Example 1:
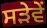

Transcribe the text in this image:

ਸੜੇਵੇਂ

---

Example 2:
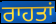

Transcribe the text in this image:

ਰਾਹਤਾਂ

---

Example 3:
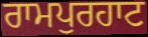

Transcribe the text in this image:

ਰਾਮਪੁਰਹਾਟ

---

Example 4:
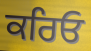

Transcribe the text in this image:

ਕਰਿਓ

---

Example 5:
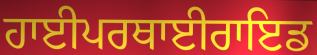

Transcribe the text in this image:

ਹਾਈਪਰਥਾਈਰਾਇਡ